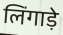
लिंगाड़े